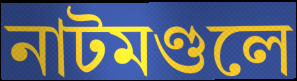
নাটমণ্ডলে